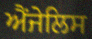
ਐਂਜੇਲਿਸ